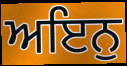
ਅਇਨੁ